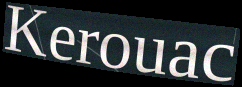
Kerouac